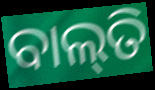
ବାଲ୍‌ତି